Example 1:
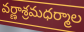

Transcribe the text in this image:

వర్ణాశ్రమధర్మాల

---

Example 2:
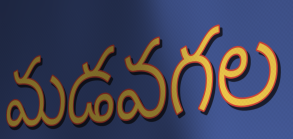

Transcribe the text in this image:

మడవగల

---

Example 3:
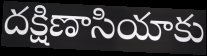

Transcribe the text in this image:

దక్షిణాసియాకు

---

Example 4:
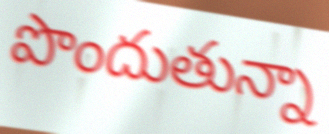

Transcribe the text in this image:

పొందుతున్నా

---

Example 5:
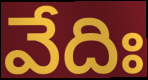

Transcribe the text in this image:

వేదిః